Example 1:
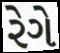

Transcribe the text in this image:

રેગે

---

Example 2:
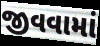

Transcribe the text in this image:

જીવવામાં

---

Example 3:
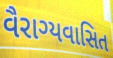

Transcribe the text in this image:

વૈરાગ્યવાસિત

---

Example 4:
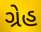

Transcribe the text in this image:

ગ્રેહ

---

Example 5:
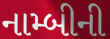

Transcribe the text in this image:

નામ્બીની